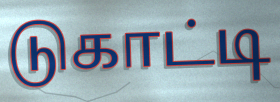
டுகாட்டி